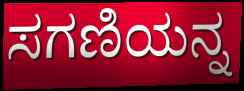
ಸಗಣಿಯನ್ನ